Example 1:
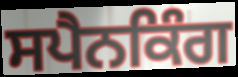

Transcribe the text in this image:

ਸਪੈਨਕਿੰਗ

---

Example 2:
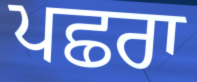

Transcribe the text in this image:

ਪਛਰਾ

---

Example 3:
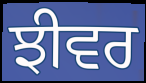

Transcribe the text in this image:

ਝੀਵਰ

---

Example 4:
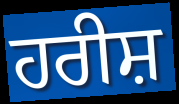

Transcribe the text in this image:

ਹਰੀਸ਼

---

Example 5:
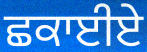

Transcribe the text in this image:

ਛਕਾਈਏ